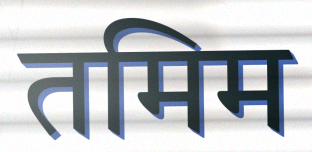
तमिम